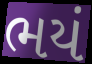
ભયં